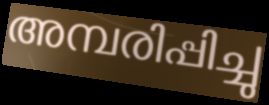
അമ്പരിപ്പിച്ചു